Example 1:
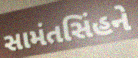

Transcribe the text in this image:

સામંતસિંહને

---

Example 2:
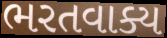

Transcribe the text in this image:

ભરતવાક્ય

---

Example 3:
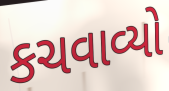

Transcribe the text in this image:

કચવાવ્યો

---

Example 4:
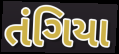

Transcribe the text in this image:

તંગિયા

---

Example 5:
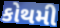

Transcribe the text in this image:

કોથમી